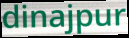
dinajpur